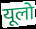
यूलो